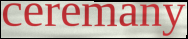
ceremany